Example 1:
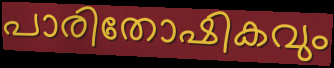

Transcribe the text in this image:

പാരിതോഷികവും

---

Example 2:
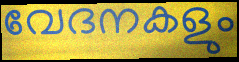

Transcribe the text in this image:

വേദനകളും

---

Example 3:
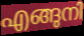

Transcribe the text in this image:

എങ്ങുനി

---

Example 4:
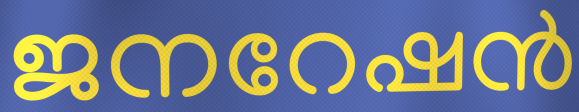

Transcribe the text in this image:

ജനറേഷൻ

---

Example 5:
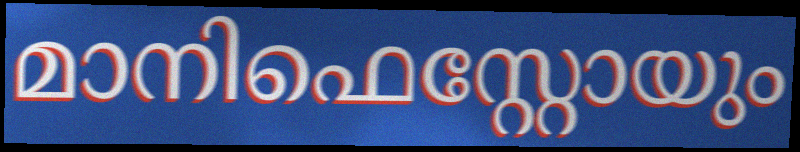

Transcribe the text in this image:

മാനിഫെസ്റ്റോയും